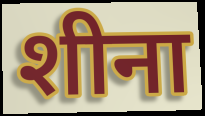
शीना